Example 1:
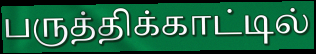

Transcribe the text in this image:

பருத்திக்காட்டில்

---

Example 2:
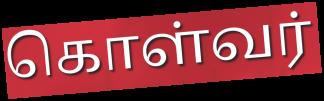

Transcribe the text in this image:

கொள்வர்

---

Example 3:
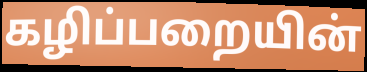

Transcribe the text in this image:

கழிப்பறையின்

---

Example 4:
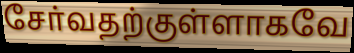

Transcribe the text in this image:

சேர்வதற்குள்ளாகவே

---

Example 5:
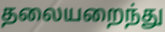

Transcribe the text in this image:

தலையறைந்து